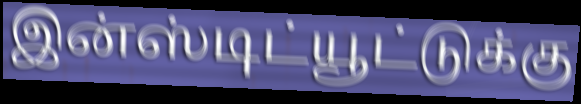
இன்ஸ்டிட்யூட்டுக்கு